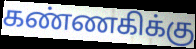
கண்ணகிக்கு